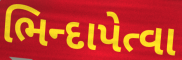
ભિન્દાપેત્વા